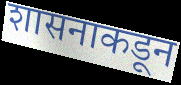
शासनाकडून